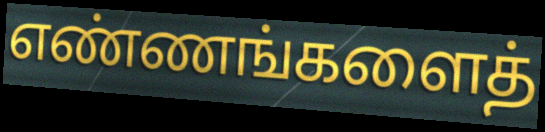
எண்ணங்களைத்